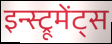
इन्स्ट्रूमेंट्स